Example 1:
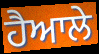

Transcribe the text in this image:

ਹੈਆਲੇ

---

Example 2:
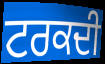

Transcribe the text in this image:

ਟਰਕਦੀ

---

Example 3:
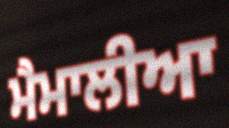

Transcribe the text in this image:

ਮੈਮਾਲੀਆ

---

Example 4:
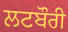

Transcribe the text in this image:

ਲਟਬੌਰੀ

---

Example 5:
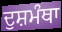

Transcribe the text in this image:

ਦੁਸ਼ਮੰਥਾ